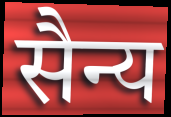
सैन्‍य